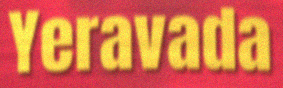
Yeravada